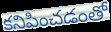
కనిపించడంతో